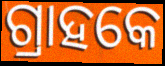
ଗ୍ରାହକେ